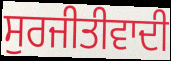
ਸੁਰਜੀਤੀਵਾਦੀ